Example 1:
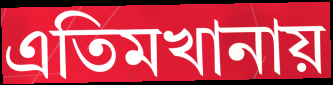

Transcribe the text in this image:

এতিমখানায়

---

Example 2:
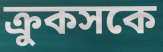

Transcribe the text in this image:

ক্রুকসকে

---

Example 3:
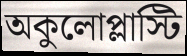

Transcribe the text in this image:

অকুলোপ্লাস্টি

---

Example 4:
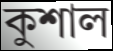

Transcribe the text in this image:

কুশাল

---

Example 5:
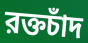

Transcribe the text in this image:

রক্তচাঁদ